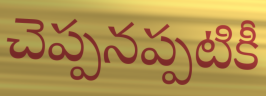
చెప్పనప్పటికీ